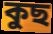
কুছ